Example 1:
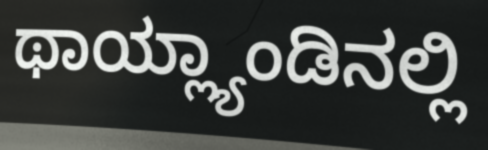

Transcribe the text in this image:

ಥಾಯ್ಲ್ಯಾಂಡಿನಲ್ಲಿ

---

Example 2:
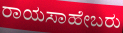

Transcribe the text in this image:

ರಾಯಸಾಹೇಬರು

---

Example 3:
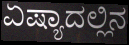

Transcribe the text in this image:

ಏಷ್ಯಾದಲ್ಲಿನ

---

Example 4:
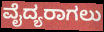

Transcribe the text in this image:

ವೈದ್ಯರಾಗಲು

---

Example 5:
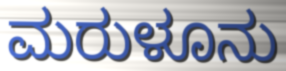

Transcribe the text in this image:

ಮರುಳೂನು